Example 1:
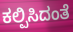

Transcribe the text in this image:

ಕಲ್ಪಿಸಿದಂತೆ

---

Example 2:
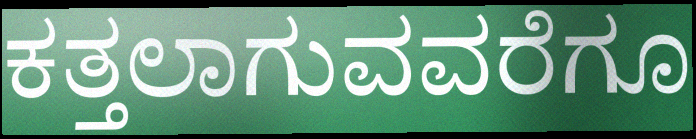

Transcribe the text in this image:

ಕತ್ತಲಾಗುವವರೆಗೂ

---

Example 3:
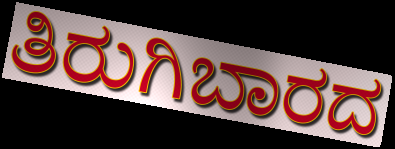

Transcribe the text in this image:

ತಿರುಗಿಬಾರದ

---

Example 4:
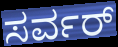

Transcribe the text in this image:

ಸರ್ವರ್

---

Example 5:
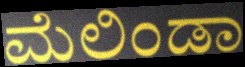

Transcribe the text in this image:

ಮೆಲಿಂಡಾ